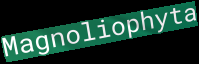
Magnoliophyta